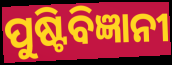
ପୁଷ୍ଟିବିଜ୍ଞାନୀ